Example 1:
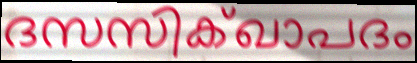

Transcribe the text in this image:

ദസസിക്ഖാപദം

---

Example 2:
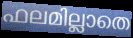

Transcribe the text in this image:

ഫലമില്ലാതെ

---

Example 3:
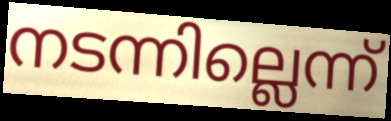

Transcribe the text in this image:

നടന്നില്ലെന്ന്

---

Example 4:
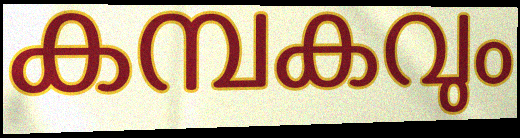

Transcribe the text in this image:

കമ്പകവും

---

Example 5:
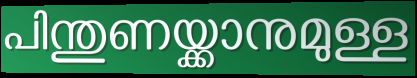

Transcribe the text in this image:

പിന്തുണയ്ക്കാനുമുള്ള